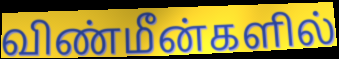
விண்மீன்களில்